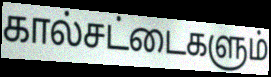
கால்சட்டைகளும்